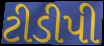
ટીડીપી